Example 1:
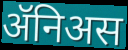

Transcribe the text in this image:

ॲनिअस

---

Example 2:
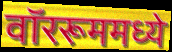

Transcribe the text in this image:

वॉररूममध्ये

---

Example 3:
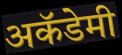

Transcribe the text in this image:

अकॅडेमी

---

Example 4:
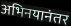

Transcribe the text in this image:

अभिनयानंतर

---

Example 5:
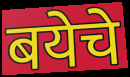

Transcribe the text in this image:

बयेचे